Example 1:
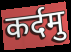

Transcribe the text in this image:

कर्दमु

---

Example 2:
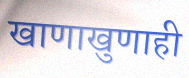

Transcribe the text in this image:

खाणाखुणाही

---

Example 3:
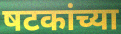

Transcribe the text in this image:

षटकांच्या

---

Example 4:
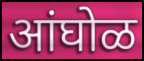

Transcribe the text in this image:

आंघोळ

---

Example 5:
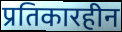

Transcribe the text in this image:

प्रतिकारहीन